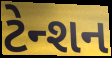
ટેન્શન